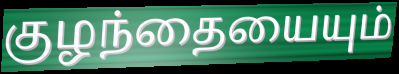
குழந்தையையும்